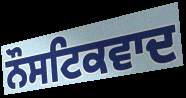
ਨੌਸਟਿਕਵਾਦ